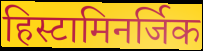
हिस्टामिनर्जिक